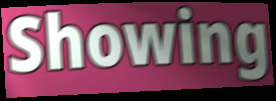
Showing